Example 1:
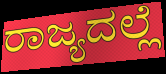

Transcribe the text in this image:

ರಾಜ್ಯದಲ್ಲೆ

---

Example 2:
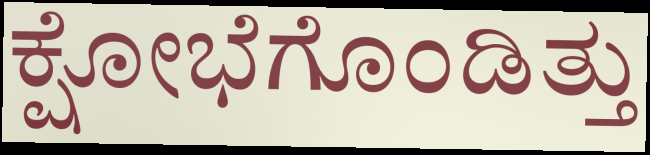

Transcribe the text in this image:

ಕ್ಷೋಭೆಗೊಂಡಿತ್ತು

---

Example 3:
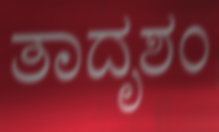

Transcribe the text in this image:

ತಾದೃಶಂ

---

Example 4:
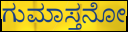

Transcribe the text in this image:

ಗುಮಾಸ್ತನೋ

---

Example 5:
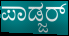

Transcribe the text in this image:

ಪಾಡ್ಜರ್